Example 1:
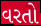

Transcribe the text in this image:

વરતો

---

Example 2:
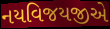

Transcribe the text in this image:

નયવિજયજીએ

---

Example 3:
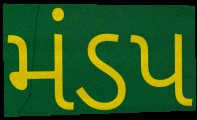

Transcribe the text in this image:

મંડપ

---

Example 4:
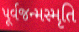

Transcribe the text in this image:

પૂર્વજન્મસ્મૃતિ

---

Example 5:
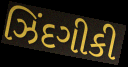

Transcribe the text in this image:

ઝિંદગીકી